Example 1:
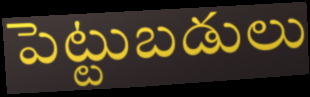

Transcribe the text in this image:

పెట్టుబడులు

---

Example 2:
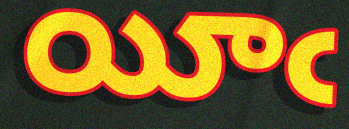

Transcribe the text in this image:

యీఁ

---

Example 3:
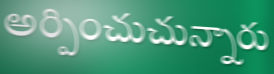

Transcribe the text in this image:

అర్పించుచున్నారు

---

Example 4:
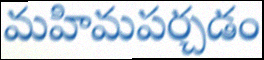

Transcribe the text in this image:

మహిమపర్చడం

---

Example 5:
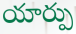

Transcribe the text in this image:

యార్పు